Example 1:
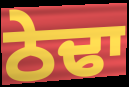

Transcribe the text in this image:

ਠੇਢਾ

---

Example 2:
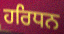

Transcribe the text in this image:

ਹਰਿਧਨ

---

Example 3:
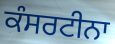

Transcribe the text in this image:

ਕੰਸਰਟੀਨਾ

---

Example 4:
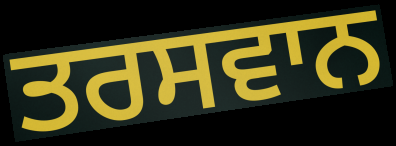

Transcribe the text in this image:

ਤਰਸਵਾਨ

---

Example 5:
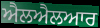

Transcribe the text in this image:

ਐਲਐਲਆਰ